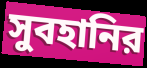
সুবহানির